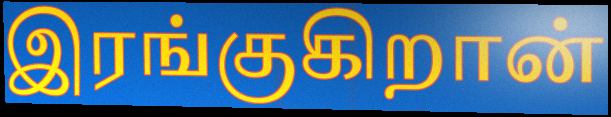
இரங்குகிறான்